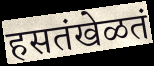
हसतंखेळतं